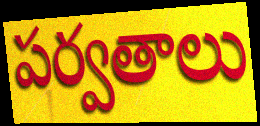
పర్వతాలు